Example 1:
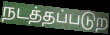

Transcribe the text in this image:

நடத்தப்படுற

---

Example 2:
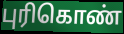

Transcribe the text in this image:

புரிகொண்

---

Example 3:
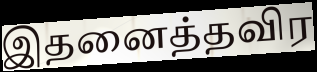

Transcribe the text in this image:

இதனைத்தவிர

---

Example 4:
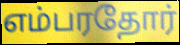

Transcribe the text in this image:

எம்பரதோர்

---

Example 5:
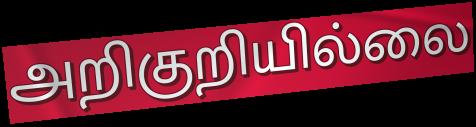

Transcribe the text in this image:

அறிகுறியில்லை